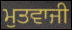
ਮੁਤਵਾਜੀ